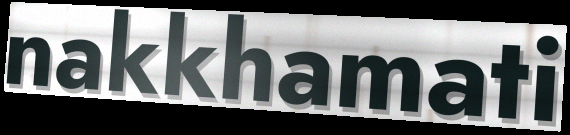
nakkhamati